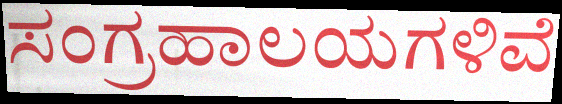
ಸಂಗ್ರಹಾಲಯಗಳಿವೆ